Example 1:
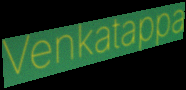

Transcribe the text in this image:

Venkatappa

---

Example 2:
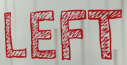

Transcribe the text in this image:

LEFT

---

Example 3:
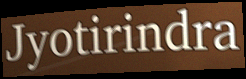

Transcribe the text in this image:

Jyotirindra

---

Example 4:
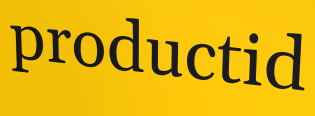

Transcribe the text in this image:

productid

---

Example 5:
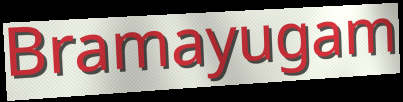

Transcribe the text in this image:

Bramayugam